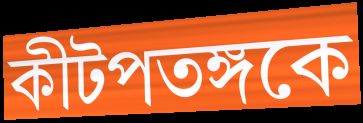
কীটপতঙ্গকে